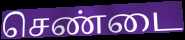
செண்டை